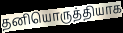
தனியொருத்தியாக